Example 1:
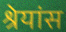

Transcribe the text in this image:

श्रेयांस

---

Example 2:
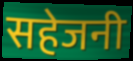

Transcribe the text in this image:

सहेजनी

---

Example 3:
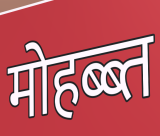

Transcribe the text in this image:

मोहब्ब्त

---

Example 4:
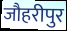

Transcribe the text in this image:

जौहरीपुर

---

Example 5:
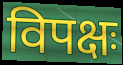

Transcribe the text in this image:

विपक्षः